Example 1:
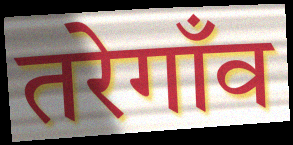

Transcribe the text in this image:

तरेगाँव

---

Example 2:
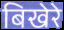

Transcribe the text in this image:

बिखेरे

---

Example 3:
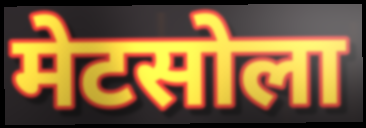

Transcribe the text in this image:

मेटसोला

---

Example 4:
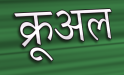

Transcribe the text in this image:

क्रूअल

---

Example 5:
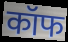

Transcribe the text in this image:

कॉफ